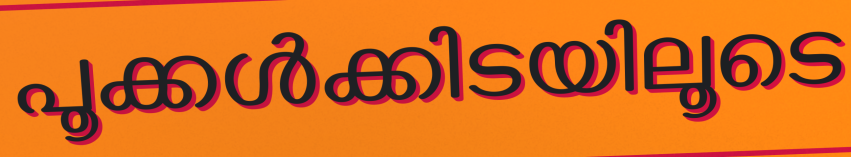
പൂക്കൾക്കിടയിലൂടെ